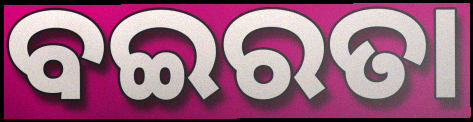
ବଇରତା